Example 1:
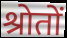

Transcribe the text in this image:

श्रोतों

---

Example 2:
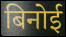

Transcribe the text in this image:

बिनोई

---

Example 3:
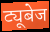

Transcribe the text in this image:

ट्यूबेज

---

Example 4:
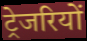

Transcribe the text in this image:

ट्रेजरियों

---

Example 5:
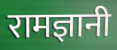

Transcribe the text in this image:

रामज्ञानी